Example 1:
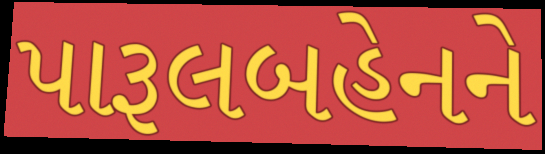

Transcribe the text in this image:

પારૂલબહેનને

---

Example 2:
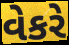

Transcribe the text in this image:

વેકરે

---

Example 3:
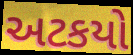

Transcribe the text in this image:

અટકયો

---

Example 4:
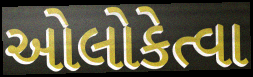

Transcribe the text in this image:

ઓલોકેત્વા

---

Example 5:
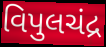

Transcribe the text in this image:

વિપુલચંદ્ર